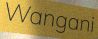
Wangani